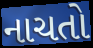
નાચતો